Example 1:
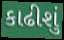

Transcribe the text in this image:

કાઢીશું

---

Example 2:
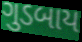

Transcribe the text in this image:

ગુડબાય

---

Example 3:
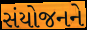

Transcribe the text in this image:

સંયોજનને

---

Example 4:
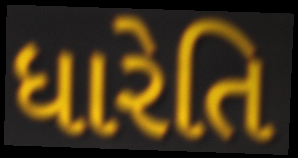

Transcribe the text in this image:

ધારેતિ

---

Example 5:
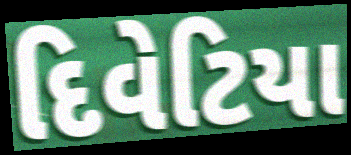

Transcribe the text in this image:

દિવેટિયા